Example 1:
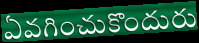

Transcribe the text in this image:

ఏవగించుకొందురు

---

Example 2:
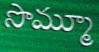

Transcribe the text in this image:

సొమ్మూ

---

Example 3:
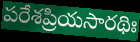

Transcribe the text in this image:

పరేశప్రియసారథిః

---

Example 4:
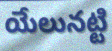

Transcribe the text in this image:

యేలునట్టి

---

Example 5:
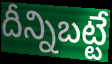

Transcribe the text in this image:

దీన్నిబట్టే